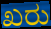
ಖರು